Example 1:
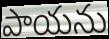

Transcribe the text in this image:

పాయను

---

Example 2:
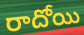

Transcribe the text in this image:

రాదోయి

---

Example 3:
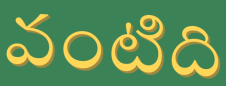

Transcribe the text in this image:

వంటిది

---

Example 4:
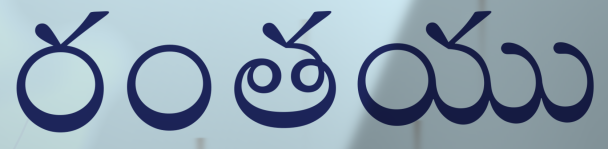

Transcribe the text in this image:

రంతయు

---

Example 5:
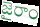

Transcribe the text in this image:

జైరాం